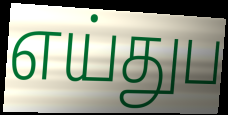
எய்துப